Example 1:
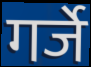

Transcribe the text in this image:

गर्जे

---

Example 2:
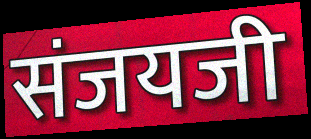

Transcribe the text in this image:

संजयजी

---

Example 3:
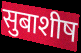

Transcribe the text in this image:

सुबाशीष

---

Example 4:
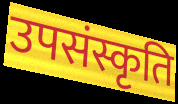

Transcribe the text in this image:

उपसंस्कृति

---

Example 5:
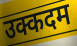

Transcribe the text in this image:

उक्कदम